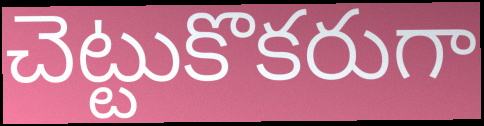
చెట్టుకొకరుగా